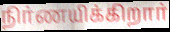
நிர்ணயிக்கிறார்